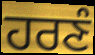
ਹਰਣੰ